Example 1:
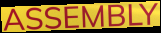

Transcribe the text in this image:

ASSEMBLY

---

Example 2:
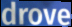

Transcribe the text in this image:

drove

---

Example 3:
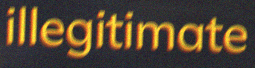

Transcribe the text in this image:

illegitimate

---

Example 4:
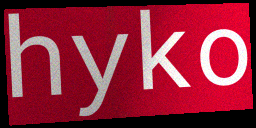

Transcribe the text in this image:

hyko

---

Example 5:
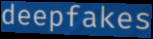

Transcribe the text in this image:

deepfakes